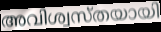
അവിശ്വസ്തയായി